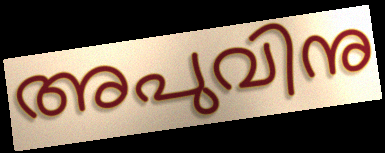
അപുവിനു